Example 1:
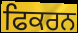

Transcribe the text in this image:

ਫਿਕਰਨ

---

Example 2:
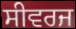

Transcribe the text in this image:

ਸੀਵਰਜ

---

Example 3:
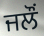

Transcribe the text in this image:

ਜਲੌਂ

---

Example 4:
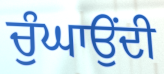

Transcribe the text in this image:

ਚੁੰਘਾਉਂਦੀ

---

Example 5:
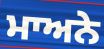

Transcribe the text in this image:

ਮਾਅਨੇ